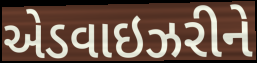
એડવાઇઝરીને